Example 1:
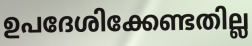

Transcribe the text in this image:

ഉപദേശിക്കേണ്ടതില്ല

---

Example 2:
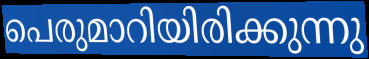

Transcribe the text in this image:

പെരുമാറിയിരിക്കുന്നു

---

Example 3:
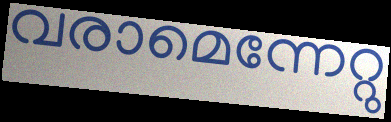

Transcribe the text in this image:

വരാമെന്നേറ്റു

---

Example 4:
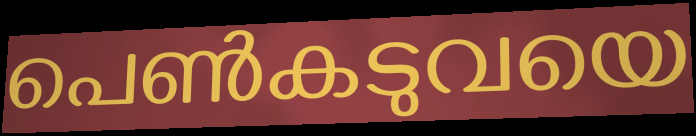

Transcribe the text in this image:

പെൺകടുവയെ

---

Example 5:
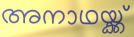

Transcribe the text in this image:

അനാഥയ്ക്ക്